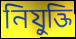
নিযুক্তি